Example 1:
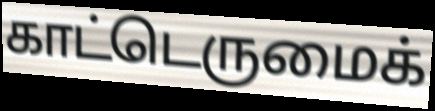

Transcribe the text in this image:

காட்டெருமைக்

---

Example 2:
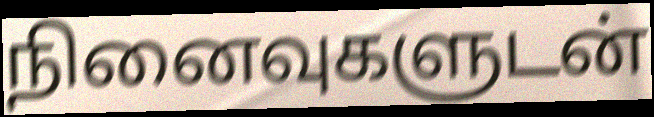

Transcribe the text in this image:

நினைவுகளுடன்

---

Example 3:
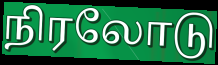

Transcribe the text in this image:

நிரலோடு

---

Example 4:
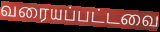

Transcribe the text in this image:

வரையப்பட்டவை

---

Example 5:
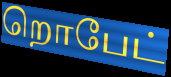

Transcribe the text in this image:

றொபேட்